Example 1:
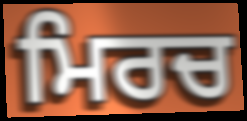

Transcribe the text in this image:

ਮਿਰਚ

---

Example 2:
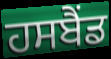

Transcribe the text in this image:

ਹਸਬੈਂਡ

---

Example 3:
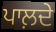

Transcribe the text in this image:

ਪਾਲ਼ਦੇ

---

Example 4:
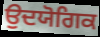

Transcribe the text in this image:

ਉਦਯੋਗਿਕ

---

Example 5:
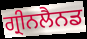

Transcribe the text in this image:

ਗ੍ਰੀਨਲੈਨਡ